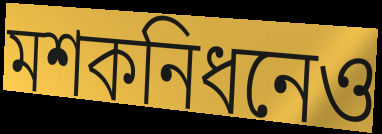
মশকনিধনেও